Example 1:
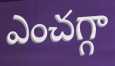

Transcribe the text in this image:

ఎంచగ్గా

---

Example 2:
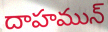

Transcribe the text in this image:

దాహమున్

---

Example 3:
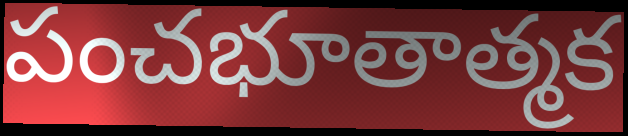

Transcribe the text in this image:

పంచభూతాత్మక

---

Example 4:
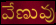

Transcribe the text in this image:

వేణువు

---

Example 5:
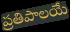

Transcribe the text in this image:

ప్రతిపాలయే